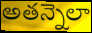
అతన్నెలా